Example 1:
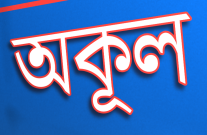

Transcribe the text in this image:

অকূল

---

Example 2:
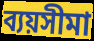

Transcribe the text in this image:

ব্যয়সীমা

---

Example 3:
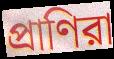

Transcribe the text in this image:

প্রাণিরা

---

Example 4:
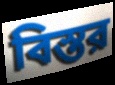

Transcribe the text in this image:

বিস্তর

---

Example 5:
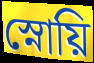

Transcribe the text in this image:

স্নোয়ি